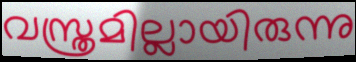
വസ്ത്രമില്ലായിരുന്നു